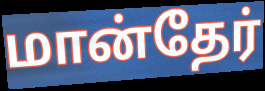
மான்தேர்